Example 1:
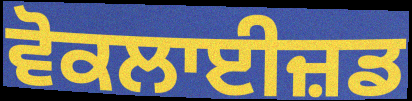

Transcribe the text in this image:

ਵੋਕਲਾਈਜ਼ਡ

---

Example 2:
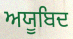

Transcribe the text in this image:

ਅਯੂਬਿਦ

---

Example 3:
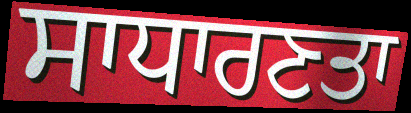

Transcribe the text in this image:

ਸਾਧਾਰਣਤਾ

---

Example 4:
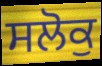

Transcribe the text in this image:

ਸਲੋਕੁ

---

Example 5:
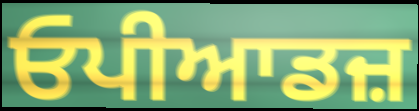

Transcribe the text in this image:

ਓਪੀਆਡਜ਼